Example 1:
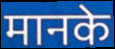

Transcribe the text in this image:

मानके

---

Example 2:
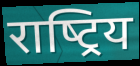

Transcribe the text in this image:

राष्ट्रिय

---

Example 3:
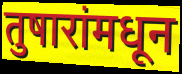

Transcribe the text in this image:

तुषारांमधून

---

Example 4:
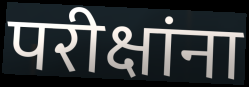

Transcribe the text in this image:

परीक्षांना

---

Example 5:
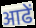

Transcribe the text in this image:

आढें